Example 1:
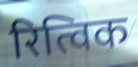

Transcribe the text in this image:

रित्विक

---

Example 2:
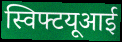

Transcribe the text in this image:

स्विफ्टयूआई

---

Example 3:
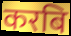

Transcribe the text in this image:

करबि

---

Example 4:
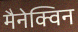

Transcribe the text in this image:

मैनेक्विन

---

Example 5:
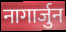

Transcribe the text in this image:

नागार्जुन